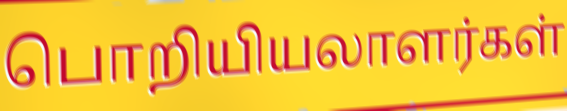
பொறியியலாளர்கள்